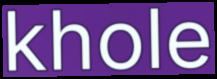
khole